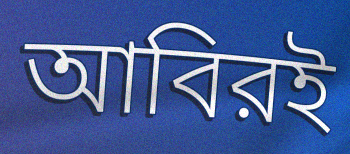
আবিরই